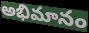
అభిమానం